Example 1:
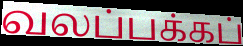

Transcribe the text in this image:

வலப்பக்கப்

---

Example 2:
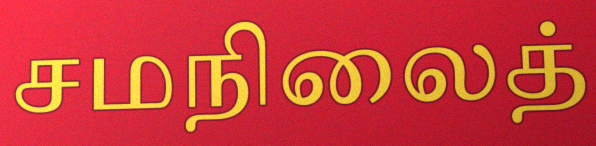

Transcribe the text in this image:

சமநிலைத்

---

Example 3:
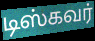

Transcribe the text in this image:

டிஸ்கவர்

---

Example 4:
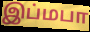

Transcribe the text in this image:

இப்மபா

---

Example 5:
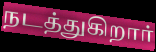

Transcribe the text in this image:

நடத்துகிறார்